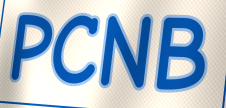
PCNB